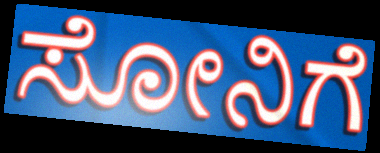
ಸೋನಿಗೆ